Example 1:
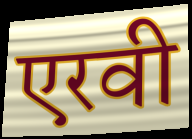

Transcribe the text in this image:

एरवी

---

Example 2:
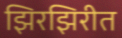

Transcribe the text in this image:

झिरझिरीत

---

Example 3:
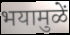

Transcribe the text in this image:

भयामुळें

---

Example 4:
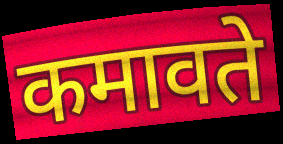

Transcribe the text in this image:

कमावते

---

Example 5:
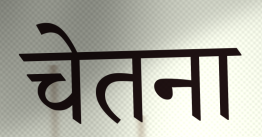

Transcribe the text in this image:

चेतना